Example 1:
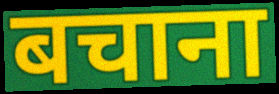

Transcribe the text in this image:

बचाना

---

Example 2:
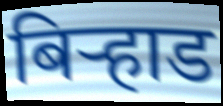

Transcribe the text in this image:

बिर्‍हाड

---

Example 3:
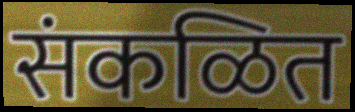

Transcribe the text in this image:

संकळित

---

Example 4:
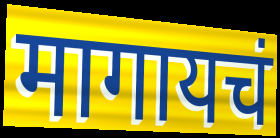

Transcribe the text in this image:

मागायचं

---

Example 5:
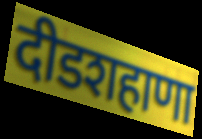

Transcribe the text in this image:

दीडशहाणा